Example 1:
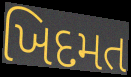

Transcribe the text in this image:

ખિદમત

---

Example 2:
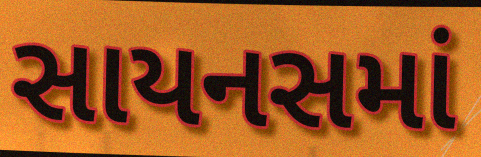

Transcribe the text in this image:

સાયનસમાં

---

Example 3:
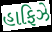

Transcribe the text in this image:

હાફિઝે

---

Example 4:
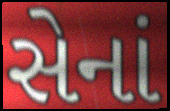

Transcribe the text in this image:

સેનાં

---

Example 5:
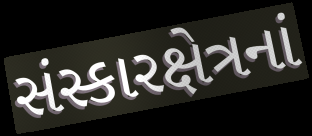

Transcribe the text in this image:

સંસ્કારક્ષેત્રનાં